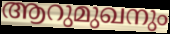
ആറുമുഖനും